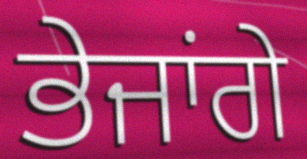
ਭੇਜਾਂਗੇ